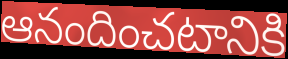
ఆనందించటానికి